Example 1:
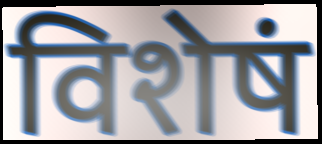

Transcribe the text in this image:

विशेषं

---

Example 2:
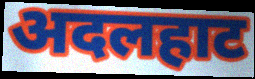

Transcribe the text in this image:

अदलहाट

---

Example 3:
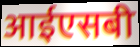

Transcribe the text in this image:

आईएसबी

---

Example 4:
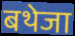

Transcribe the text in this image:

बथेजा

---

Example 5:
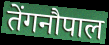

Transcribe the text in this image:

तेंगनौपाल